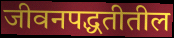
जीवनपद्धतीतील